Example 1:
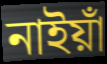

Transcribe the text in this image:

নাইয়াঁ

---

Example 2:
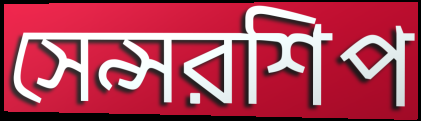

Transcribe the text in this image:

সেন্সরশিপ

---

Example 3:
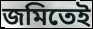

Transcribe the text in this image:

জমিতেই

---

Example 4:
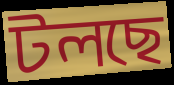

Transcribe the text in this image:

টলছে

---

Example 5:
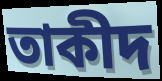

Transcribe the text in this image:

তাকীদ